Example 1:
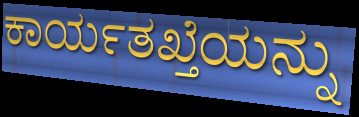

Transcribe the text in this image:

ಕಾರ್ಯತಖ್ತೆಯನ್ನು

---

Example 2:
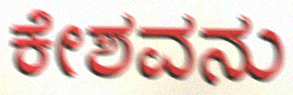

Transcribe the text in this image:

ಕೇಶವನು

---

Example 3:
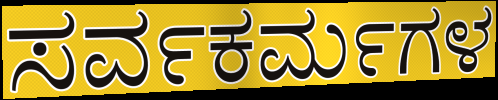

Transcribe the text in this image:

ಸರ್ವಕರ್ಮಗಳ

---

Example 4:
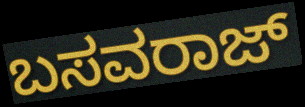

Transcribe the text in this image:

ಬಸವರಾಜ್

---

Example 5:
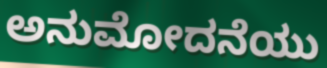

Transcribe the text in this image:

ಅನುಮೋದನೆಯು